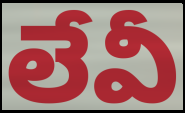
లేవీ